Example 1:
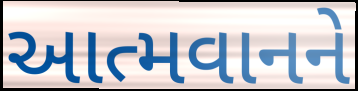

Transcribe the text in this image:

આત્મવાનને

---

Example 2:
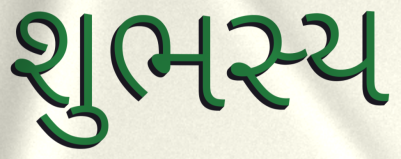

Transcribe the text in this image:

શુભસ્ય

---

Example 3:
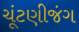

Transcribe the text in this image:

ચૂંટણીજંગ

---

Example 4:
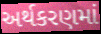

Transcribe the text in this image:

અર્થકરણમાં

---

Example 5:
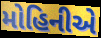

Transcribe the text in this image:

મોહિનીએ